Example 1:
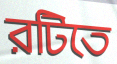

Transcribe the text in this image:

রটিতে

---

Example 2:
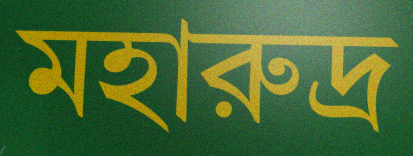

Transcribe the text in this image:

মহারুদ্র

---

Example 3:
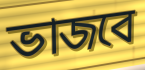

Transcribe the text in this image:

ভাজবে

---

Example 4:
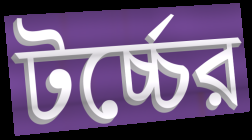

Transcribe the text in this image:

টর্চ্চের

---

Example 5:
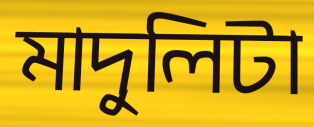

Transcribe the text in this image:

মাদুলিটা